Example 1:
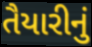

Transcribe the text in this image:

તૈયારીનું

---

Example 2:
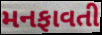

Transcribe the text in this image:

મનફાવતી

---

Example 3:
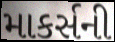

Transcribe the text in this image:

માકર્સની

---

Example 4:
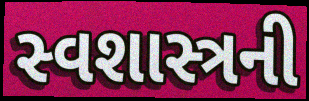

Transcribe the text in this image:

સ્વશાસ્ત્રની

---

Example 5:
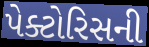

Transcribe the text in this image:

પેક્ટોરિસની